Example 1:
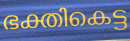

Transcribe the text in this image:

ഭക്തികെട്ട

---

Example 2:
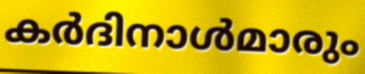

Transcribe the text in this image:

കർദിനാൾമാരും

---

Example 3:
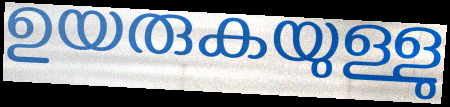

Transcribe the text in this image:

ഉയരുകയുള്ളു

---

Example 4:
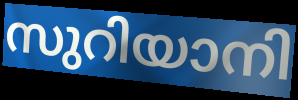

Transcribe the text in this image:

സുറിയാനി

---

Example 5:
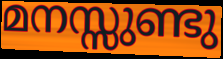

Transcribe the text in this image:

മനസ്സുണ്ടു